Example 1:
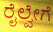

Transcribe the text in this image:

ರೈಲ್ವೇಗೆ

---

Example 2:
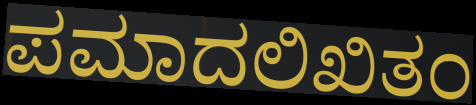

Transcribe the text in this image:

ಪಮಾದಲಿಖಿತಂ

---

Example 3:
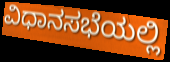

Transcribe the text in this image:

ವಿಧಾನಸಭೆಯಲ್ಲಿ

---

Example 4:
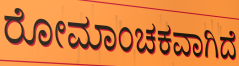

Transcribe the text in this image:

ರೋಮಾಂಚಕವಾಗಿದೆ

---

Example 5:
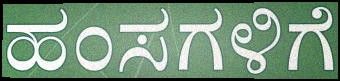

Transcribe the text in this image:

ಹಂಸಗಳಿಗೆ